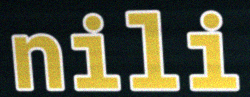
nili